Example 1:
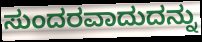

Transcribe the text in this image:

ಸುಂದರವಾದುದನ್ನು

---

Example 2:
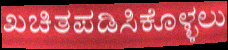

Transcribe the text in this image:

ಖಚಿತಪಡಿಸಿಕೊಳ್ಳಲು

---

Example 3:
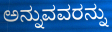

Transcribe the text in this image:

ಅನ್ನುವವರನ್ನು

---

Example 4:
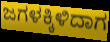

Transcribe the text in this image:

ಜಗಳಕ್ಕಿಳಿದಾಗ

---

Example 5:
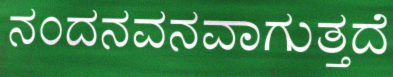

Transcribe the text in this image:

ನಂದನವನವಾಗುತ್ತದೆ